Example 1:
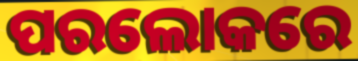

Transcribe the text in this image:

ପରଲୋକରେ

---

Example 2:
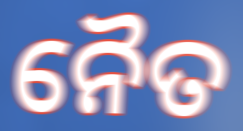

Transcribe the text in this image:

ନୈତ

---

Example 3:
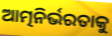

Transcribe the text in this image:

ଆତ୍ମନିର୍ଭରତାକୁ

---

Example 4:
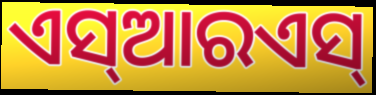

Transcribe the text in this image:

ଏସ୍ଆରଏସ୍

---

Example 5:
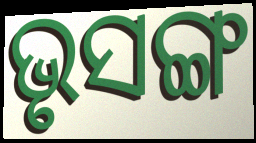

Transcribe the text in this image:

ଭୃସଙ୍ଗ